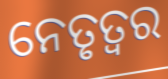
ନେତୃତ୍ବର